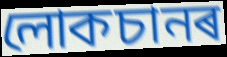
লোকচানৰ